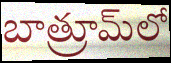
బాత్రూమ్‌లో